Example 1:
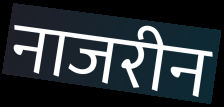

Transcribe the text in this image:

नाजरीन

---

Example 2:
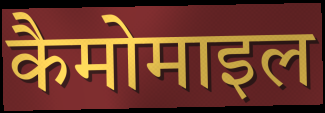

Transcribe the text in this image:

कैमोमाइल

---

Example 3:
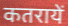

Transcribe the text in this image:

कतरायें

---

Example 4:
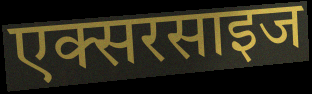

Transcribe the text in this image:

एक्‍सरसाइज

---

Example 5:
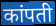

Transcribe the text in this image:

कांपती